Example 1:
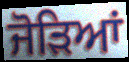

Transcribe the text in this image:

ਜੋੜਿਆਂ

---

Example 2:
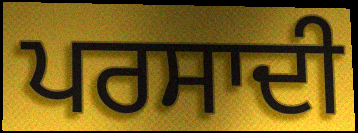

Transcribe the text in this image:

ਪਰਸਾਦੀ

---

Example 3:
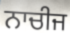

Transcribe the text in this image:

ਨਾਚੀਜ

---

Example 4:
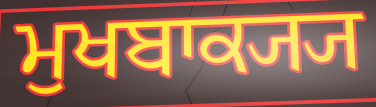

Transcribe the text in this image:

ਮੁਖਬਾਕ੍ਯ੍ਯ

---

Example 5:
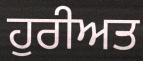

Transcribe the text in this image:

ਹੁਰੀਅਤ